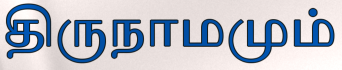
திருநாமமும்